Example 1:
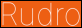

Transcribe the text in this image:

Rudro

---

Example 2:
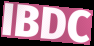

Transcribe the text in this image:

IBDC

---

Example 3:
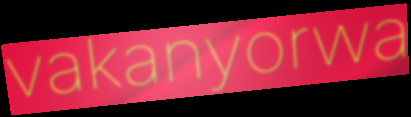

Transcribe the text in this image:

vakanyorwa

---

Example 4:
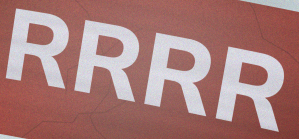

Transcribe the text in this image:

RRRR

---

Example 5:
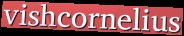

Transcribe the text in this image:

vishcornelius